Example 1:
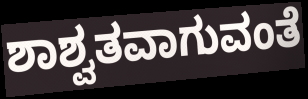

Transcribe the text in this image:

ಶಾಶ್ವತವಾಗುವಂತೆ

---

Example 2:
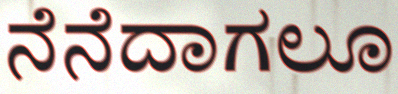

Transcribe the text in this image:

ನೆನೆದಾಗಲೂ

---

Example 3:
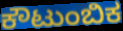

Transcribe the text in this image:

ಕೌಟುಂಬಿಕ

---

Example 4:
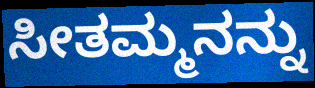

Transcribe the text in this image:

ಸೀತಮ್ಮನನ್ನು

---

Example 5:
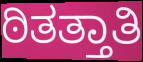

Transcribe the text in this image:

ಠಿತತ್ತಾತಿ